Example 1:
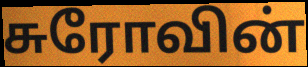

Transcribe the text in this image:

சுரோவின்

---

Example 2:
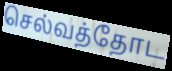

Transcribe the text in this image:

செல்வத்தோட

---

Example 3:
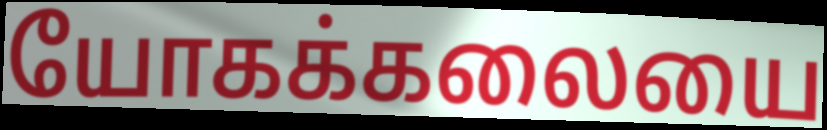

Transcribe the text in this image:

யோகக்கலையை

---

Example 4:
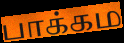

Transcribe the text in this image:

பாக்கம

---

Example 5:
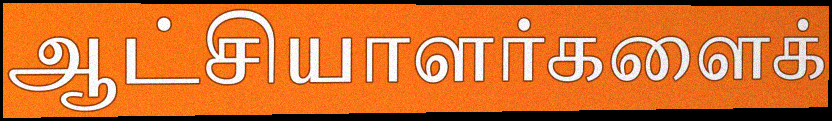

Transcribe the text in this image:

ஆட்சியாளர்களைக்